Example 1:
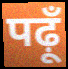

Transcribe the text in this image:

पढ़ूँ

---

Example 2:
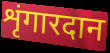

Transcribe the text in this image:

शृंगारदान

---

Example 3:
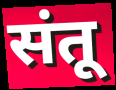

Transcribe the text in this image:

संतू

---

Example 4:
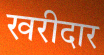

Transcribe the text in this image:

खरीदार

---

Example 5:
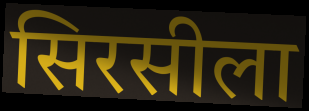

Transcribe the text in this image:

सिरसीला